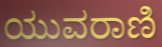
ಯುವರಾಣಿ